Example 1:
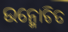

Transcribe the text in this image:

ଉନ୍ମୋଚିତ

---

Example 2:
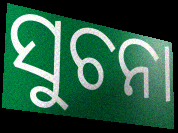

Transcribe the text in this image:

ସୁଚନା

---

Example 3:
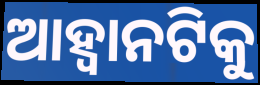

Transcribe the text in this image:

ଆହ୍ଵାନଟିକୁ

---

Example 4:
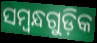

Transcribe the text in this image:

ସମ୍ବନ୍ଧଗୁଡ଼ିକ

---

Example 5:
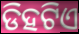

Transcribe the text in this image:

ଡିହଟିଏ